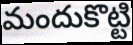
మందుకొట్టి